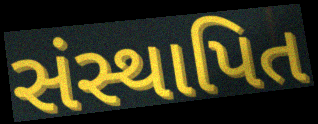
સંસ્થાપિત